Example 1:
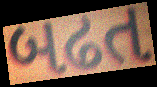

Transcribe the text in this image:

બઢત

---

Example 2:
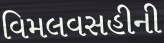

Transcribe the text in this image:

વિમલવસહીની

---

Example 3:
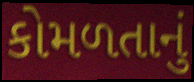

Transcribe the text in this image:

કોમળતાનું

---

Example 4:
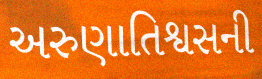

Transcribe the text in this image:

અરુણાતિશ્વસની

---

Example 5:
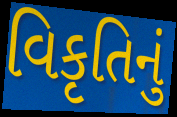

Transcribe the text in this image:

વિકૃતિનું